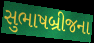
સુભાષબ્રીજના